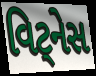
વિટ્નેસ